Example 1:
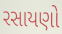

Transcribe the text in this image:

રસાયણો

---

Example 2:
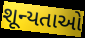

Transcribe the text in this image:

શૂન્યતાઓ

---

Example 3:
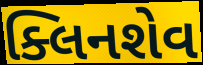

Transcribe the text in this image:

ક્લિનશેવ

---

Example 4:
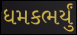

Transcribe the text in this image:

ધમકભર્યું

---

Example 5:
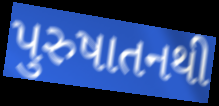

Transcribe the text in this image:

પુરુષાતનથી